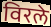
विरले